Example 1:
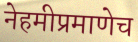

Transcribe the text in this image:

नेहमीप्रमाणेच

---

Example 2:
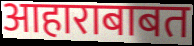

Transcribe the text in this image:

आहाराबाबत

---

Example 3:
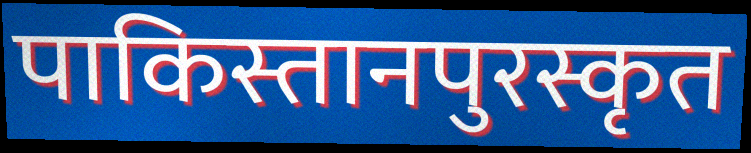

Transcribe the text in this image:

पाकिस्तानपुरस्कृत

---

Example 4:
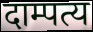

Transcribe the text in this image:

दाम्पत्य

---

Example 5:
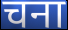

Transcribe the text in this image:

चना